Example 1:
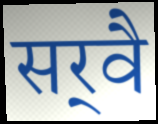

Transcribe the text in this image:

सर्वै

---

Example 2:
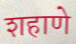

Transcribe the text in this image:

शहाणे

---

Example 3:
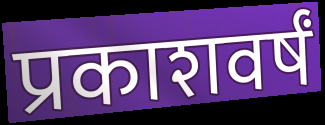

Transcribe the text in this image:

प्रकाशवर्षं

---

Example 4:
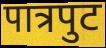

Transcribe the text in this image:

पात्रपुट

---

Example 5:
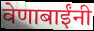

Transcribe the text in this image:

वेणाबाईंनी